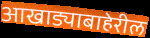
आखाड्याबाहेरील